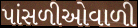
પાંસળીઓવાળી